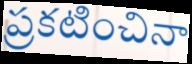
ప్రకటించినా